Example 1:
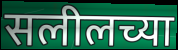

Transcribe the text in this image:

सलीलच्या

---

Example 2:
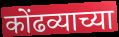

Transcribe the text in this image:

कोंढव्याच्या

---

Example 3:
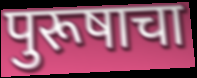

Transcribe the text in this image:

पुरूषाचा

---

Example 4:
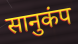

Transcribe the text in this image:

सानुकंप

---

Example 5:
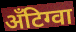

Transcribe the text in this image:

अँटिग्वा